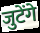
जुटेंगे